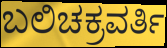
ಬಲಿಚಕ್ರವರ್ತಿ